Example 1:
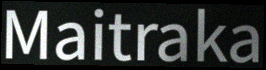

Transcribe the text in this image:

Maitraka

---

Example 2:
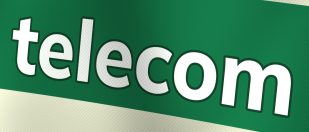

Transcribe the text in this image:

telecom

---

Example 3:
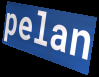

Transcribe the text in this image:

pelan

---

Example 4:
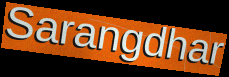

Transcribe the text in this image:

Sarangdhar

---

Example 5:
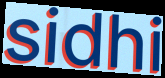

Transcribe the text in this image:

sidhi